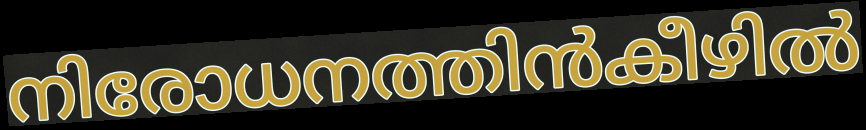
നിരോധനത്തിൻകീഴിൽ